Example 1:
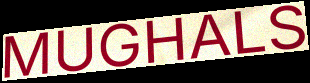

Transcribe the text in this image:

MUGHALS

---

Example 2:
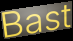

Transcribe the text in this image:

Bast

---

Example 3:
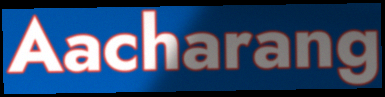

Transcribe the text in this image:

Aacharang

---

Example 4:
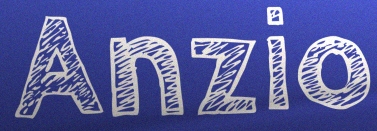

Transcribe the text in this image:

Anzio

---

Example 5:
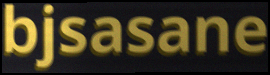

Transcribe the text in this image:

bjsasane